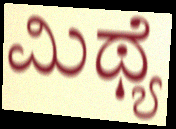
ಮಿಥ್ಯೆ